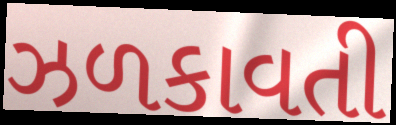
ઝળકાવતી